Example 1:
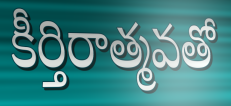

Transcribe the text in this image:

కీర్తిరాత్మవతో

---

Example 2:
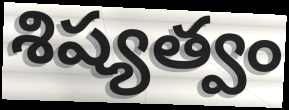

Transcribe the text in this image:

శిష్యత్వం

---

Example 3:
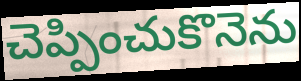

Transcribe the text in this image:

చెప్పించుకొనెను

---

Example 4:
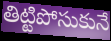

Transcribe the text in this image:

తిట్టిపోసుకునే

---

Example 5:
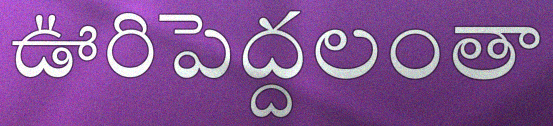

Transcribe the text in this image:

ఊరిపెద్దలంతా